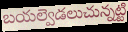
బయల్వెడలుచున్నట్టి